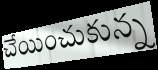
చేయించుకున్న